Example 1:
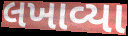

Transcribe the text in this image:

લખાવ્યા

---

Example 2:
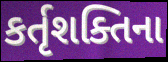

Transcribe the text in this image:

કર્તૃશક્તિના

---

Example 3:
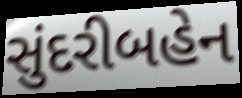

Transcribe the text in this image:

સુંદરીબહેન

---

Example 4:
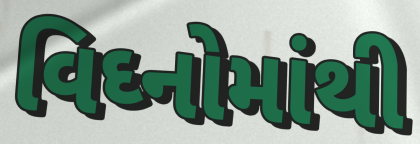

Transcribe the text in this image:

વિઘ્નોમાંથી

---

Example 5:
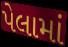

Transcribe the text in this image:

પેલામાં